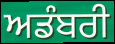
ਅਡੰਬਰੀ